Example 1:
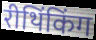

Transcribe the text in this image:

रीथिंकिंग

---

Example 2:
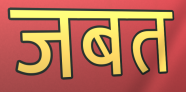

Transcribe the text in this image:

जबत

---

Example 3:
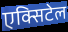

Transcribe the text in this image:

एक्सिटेल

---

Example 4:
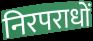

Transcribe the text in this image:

निरपराधों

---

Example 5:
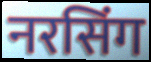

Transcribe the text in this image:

नरसिंग